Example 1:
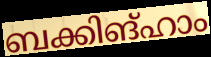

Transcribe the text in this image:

ബക്കിങ്ഹാം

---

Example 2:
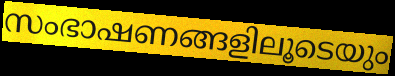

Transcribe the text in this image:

സംഭാഷണങ്ങളിലൂടെയും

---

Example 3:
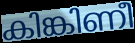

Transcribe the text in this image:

കിങ്കിണീ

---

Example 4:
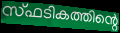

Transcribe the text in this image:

സ്ഫടികത്തിന്റെ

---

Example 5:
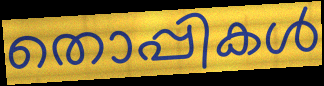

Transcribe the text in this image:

തൊപ്പികൾ